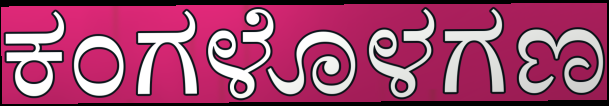
ಕಂಗಳೊಳಗಣ